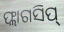
ଫ୍ଲାଗସିପ୍